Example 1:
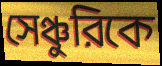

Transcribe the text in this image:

সেঞ্চুরিকে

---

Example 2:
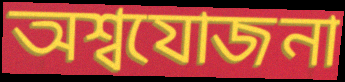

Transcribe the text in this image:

অশ্বযোজনা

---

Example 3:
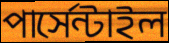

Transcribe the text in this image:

পার্সেন্টাইল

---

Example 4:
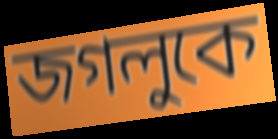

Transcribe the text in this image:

জগলুকে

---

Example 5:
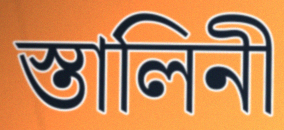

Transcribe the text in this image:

স্তালিনী